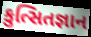
કુત્સિતજ્ઞાન